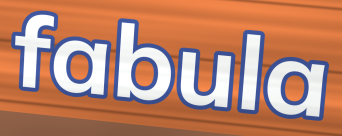
fabula